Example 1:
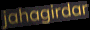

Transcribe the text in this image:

jahagirdar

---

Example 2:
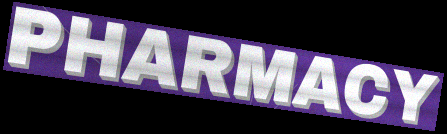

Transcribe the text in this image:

PHARMACY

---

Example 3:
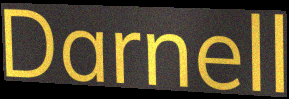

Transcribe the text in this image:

Darnell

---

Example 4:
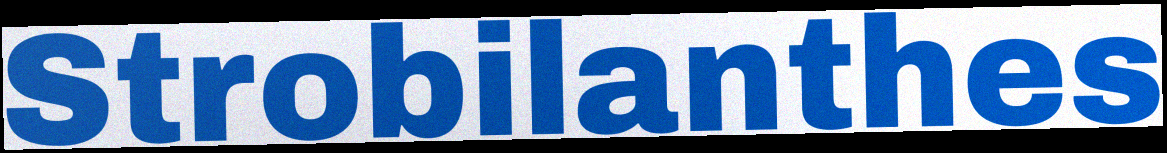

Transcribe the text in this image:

Strobilanthes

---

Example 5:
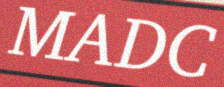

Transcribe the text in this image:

MADC